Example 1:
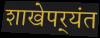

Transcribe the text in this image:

शाखेपर्यंत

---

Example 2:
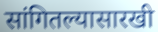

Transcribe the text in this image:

सांगितल्यासारखी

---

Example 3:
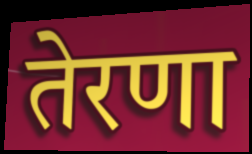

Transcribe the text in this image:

तेरणा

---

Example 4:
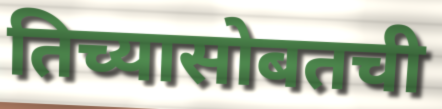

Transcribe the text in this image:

तिच्यासोबतची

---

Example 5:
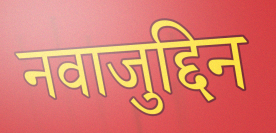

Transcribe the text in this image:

नवाजुद्दिन